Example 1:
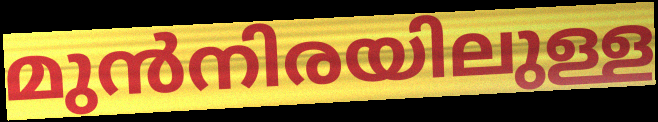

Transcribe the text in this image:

മുൻനിരയിലുള്ള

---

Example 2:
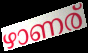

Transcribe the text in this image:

ഴാണര്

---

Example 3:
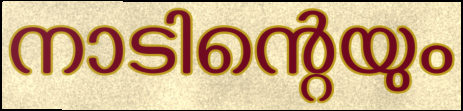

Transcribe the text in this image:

നാടിന്റെയും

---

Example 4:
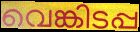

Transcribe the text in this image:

വെങ്കിടപ്പ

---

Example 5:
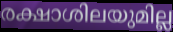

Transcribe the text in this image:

രക്ഷാശിലയുമില്ല